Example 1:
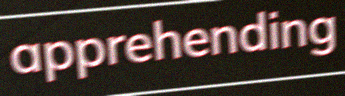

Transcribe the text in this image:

apprehending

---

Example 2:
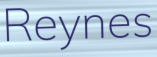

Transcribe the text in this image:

Reynes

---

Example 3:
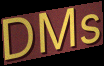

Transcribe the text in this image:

DMs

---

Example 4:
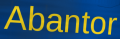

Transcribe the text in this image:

Abantor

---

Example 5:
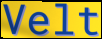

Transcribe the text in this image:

Velt